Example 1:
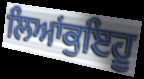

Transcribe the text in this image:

ਲਿਆਂਕੁਇਹੂ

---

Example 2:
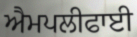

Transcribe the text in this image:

ਐਮਪਲੀਫਾਈ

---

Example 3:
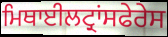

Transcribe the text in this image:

ਮਿਥਾਈਲਟ੍ਰਾਂਸਫੇਰੇਸ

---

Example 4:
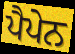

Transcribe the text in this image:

ਪੈਪੇਨ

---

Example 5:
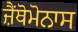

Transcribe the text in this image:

ਜ਼ੈਂਥੋਮੋਨਾਸ